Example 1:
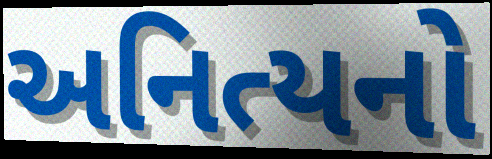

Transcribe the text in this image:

અનિત્યનો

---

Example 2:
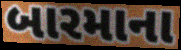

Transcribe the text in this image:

બારમાના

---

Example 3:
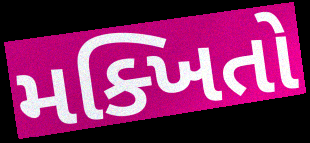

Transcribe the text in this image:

મક્ખિતો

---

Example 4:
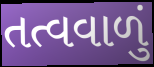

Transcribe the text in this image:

તત્વવાળું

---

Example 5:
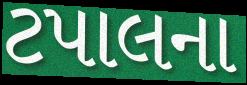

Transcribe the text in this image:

ટપાલના